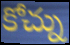
కోచ్ను